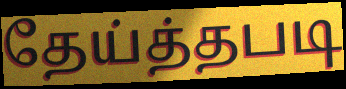
தேய்த்தபடி